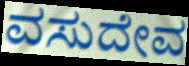
ವಸುದೇವ